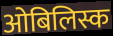
ओबिलिस्क